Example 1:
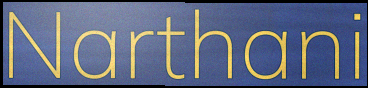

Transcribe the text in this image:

Narthani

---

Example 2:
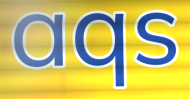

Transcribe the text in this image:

aqs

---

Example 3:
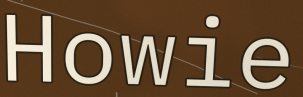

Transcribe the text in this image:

Howie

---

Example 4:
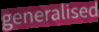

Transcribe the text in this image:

generalised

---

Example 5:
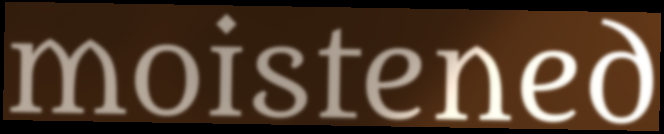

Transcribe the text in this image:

moistened